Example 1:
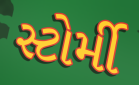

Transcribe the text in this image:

સ્ટોર્મી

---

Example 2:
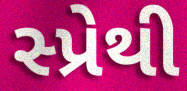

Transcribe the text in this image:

સ્પ્રેથી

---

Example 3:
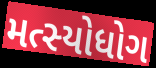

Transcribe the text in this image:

મત્સ્યોધોગ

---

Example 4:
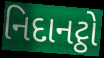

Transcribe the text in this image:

નિદાનટ્ઠો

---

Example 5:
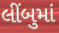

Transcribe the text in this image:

લીંબુમાં